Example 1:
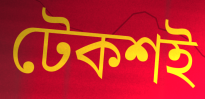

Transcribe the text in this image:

টেকশই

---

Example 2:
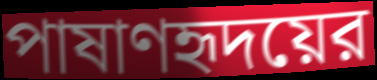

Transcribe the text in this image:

পাষাণহৃদয়ের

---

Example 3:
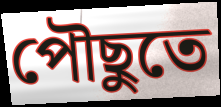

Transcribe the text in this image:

পৌছুতে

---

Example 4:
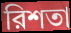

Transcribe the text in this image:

রিশতা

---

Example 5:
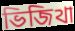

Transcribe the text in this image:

ভিজিথা